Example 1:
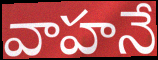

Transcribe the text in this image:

వాహనే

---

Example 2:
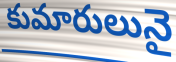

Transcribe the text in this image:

కుమారులునై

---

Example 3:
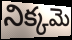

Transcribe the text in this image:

నిక్కమె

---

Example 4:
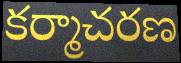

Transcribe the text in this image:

కర్మాచరణ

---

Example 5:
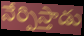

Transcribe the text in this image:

నేర్పిస్తాడు